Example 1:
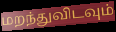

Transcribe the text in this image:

மறந்துவிடவும்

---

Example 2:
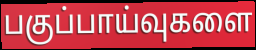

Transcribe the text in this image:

பகுப்பாய்வுகளை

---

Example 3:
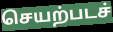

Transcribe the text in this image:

செயற்படச்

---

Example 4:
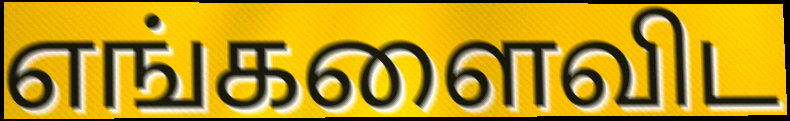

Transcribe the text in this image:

எங்களைவிட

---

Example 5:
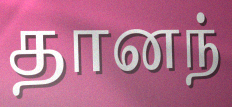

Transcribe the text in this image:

தானந்